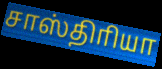
சாஸ்திரியா